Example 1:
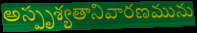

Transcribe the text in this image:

అస్పృశ్యతానివారణమును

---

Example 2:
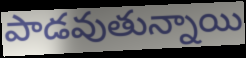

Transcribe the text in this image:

పాడవుతున్నాయి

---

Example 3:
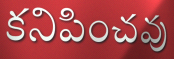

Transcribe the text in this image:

కనిపించవు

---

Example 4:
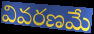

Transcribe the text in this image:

వివరణమే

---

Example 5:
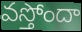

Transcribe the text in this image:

వస్తోందా